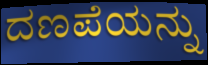
ದಣಪೆಯನ್ನು